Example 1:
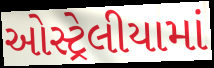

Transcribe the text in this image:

ઓસ્ટ્રેલીયામાં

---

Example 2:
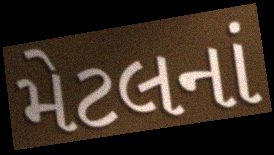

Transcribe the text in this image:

મેટલનાં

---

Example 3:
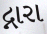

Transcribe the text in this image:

દ્નારા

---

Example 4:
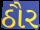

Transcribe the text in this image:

ઠૌર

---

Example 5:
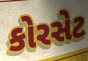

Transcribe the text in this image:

કોરસેટ